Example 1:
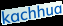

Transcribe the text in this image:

kachhua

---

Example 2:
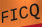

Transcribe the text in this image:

FICQ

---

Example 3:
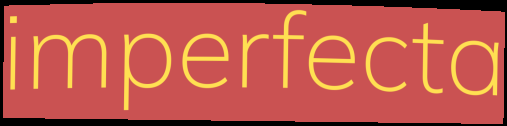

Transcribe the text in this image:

imperfecta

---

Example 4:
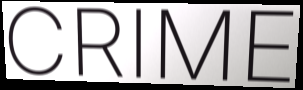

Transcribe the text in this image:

CRIME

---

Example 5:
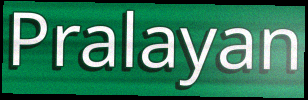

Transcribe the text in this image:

Pralayan